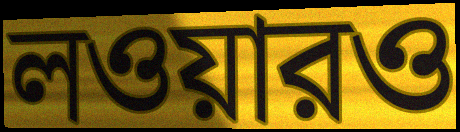
লওয়ারও